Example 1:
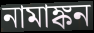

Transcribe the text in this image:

নামাঙ্কন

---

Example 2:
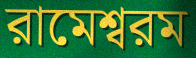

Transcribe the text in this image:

রামেশ্বরম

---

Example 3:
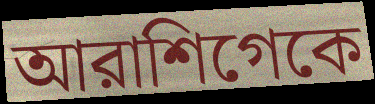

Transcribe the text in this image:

আরাশিগেকে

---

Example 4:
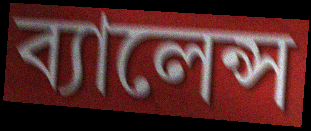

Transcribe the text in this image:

ব্যালেন্স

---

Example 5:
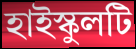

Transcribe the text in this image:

হাইস্কুলটি